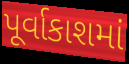
પૂર્વાકાશમાં